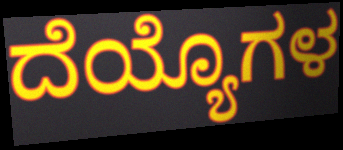
ದೆಯ್ಯೊಗಳ